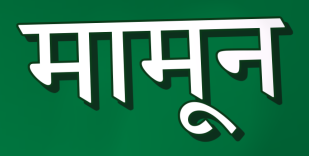
मामून